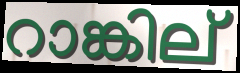
റാങ്കില്